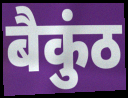
बैकुंठ